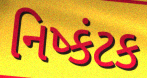
નિષ્કંટક